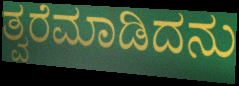
ತ್ವರೆಮಾಡಿದನು